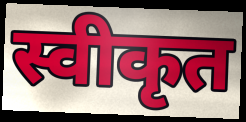
स्वीकृत